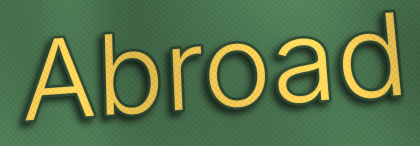
Abroad